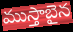
ముస్తాబైన